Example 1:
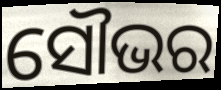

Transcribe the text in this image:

ସୌଭର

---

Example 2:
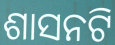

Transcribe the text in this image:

ଶାସନଟି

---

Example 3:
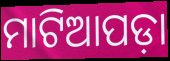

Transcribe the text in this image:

ମାଟିଆପଡ଼ା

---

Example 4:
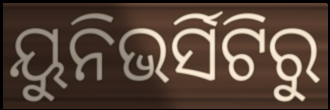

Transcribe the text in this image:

ୟୁନିଭର୍ସିଟିରୁ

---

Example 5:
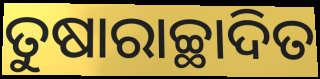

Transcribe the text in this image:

ତୁଷାରାଚ୍ଛାଦିତ